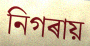
নিগৰায়